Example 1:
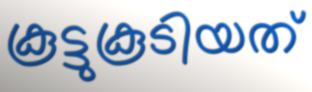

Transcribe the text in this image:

കൂട്ടുകൂടിയത്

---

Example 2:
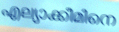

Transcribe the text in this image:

എല്യാക്കീമിനെ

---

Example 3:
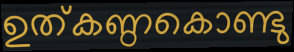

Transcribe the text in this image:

ഉത്കണ്ഠകൊണ്ടു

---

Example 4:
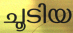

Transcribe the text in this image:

ചൂടിയ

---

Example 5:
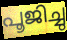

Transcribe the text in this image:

പൂജിച്ചു